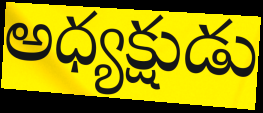
అధ్యక్షుడు